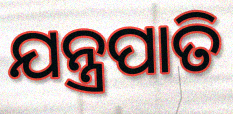
ଯନ୍ତ୍ରପାତି